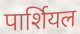
पार्शियल